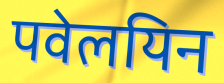
पवेलयिन